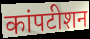
कांपटीशन